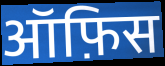
ऑफ़िस